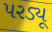
પરડ્યૂ